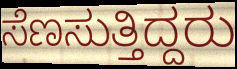
ಸೆಣಸುತ್ತಿದ್ದರು